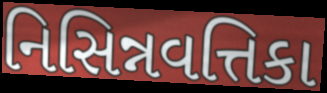
નિસિન્નવત્તિકા